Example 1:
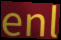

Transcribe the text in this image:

enl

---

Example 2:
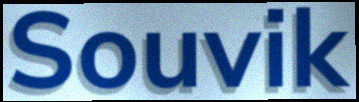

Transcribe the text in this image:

Souvik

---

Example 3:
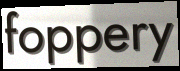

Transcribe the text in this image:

foppery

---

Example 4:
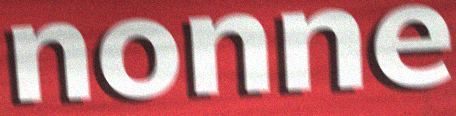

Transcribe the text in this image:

nonne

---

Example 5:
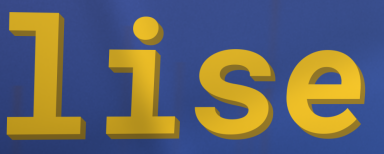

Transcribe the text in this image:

lise